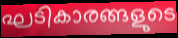
ഘടികാരങ്ങളുടെ